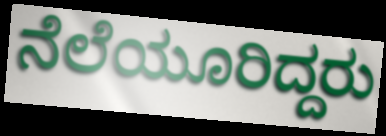
ನೆಲೆಯೂರಿದ್ದರು